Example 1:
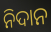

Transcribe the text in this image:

ନିଦାନ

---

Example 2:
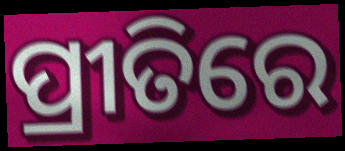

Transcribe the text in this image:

ପ୍ରୀତିରେ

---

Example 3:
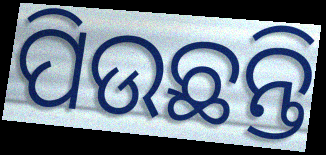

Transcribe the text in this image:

ପିଉଛନ୍ତି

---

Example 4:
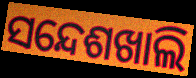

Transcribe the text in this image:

ସନ୍ଦେଶଖାଲି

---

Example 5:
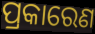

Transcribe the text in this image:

ପ୍ରକାରେଣ